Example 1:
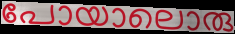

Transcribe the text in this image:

പോയാലൊരു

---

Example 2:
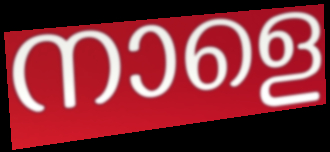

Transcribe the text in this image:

നാളെ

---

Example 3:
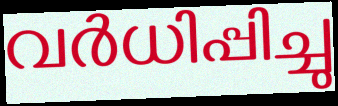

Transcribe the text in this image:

വർധിപ്പിച്ചു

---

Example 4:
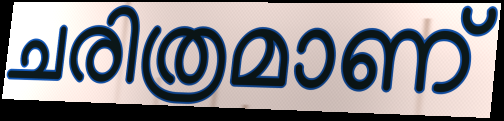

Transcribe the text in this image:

ചരിത്രമാണ്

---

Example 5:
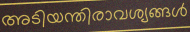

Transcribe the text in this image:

അടിയന്തിരാവശ്യങ്ങൾ